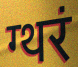
ग्थरं